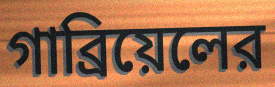
গাব্রিয়েলের